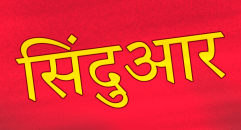
सिंदुआर